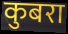
कुबरा